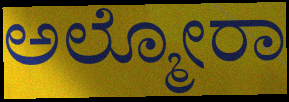
ಅಲ್ಮೋರಾ